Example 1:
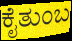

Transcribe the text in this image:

ಕೈತುಂಬ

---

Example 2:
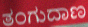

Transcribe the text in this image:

ತಂಗುದಾಣ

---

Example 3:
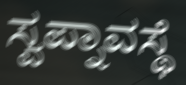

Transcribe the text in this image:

ಸ್ವಪ್ನಾವಸ್ಥೆ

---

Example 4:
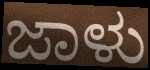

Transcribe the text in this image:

ಜಾಳು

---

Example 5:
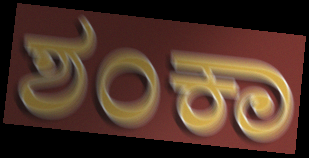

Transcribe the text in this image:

ಶಂಕಾ